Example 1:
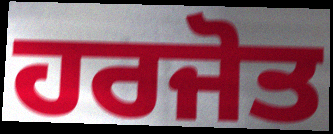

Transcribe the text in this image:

ਹਰਜੋਤ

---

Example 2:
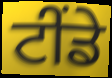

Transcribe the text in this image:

ਟੀਂਡੇ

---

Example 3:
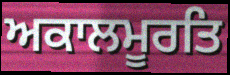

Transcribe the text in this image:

ਅਕਾਲਮੂਰਤਿ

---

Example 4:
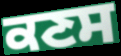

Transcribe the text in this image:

ਕਣਸ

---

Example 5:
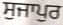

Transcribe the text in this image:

ਸੁਜਾਪੁਰ